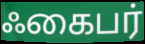
ஃகைபர்